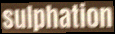
sulphation